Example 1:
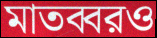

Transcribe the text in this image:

মাতব্বরও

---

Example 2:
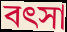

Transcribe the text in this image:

বৎসা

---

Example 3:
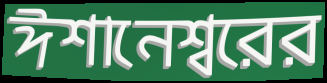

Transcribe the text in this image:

ঈশানেশ্বরের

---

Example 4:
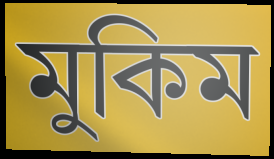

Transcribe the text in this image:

মুকিম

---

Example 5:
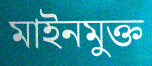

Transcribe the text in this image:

মাইনমুক্ত